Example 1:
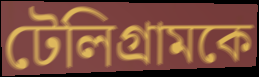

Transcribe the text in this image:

টেলিগ্রামকে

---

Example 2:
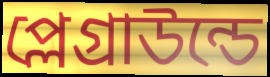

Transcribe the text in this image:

প্লেগ্রাউন্ডে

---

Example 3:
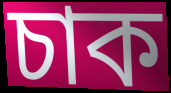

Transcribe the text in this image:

চাক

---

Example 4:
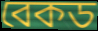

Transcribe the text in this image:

বেকড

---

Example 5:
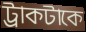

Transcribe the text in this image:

ট্রাকটাকে